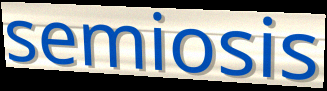
semiosis